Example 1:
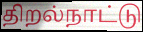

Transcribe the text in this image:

திறல்நாட்டு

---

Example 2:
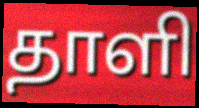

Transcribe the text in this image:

தாளி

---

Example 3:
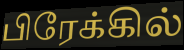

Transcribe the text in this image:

பிரேக்கில்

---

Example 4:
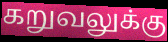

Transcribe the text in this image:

கறுவலுக்கு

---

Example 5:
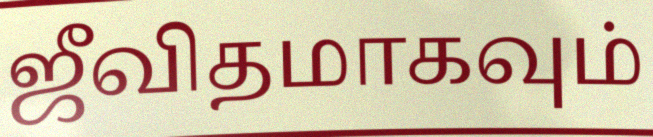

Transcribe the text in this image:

ஜீவிதமாகவும்